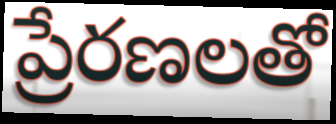
ప్రేరణలతో